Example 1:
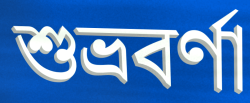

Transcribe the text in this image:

শুভ্রবর্ণা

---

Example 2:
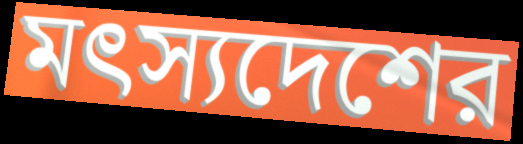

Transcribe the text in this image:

মৎস্যদেশের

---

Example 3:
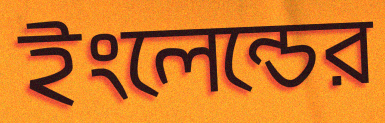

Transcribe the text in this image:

ইংলেন্ডের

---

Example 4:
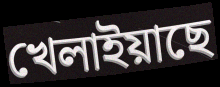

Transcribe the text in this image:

খেলাইয়াছে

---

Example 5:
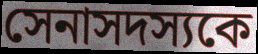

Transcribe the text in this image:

সেনাসদস্যকে